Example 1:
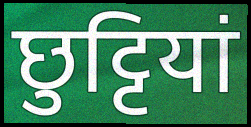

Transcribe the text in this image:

छुट्टियां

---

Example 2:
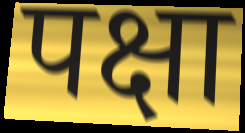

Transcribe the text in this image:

पक्षा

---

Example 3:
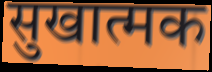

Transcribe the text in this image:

सुखात्मक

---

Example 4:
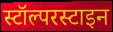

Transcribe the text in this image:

स्टॉल्परस्टाइन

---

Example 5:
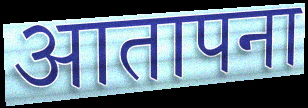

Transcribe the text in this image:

आतापना